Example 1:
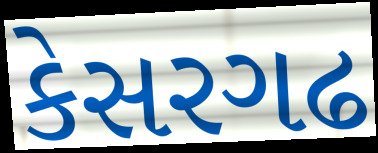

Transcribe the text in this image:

કેસરગઢ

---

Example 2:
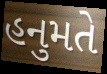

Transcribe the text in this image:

હનુમતે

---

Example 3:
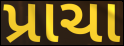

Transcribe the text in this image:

પ્રાચા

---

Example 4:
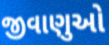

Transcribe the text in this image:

જીવાણુઓ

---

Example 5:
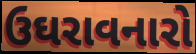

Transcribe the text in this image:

ઉઘરાવનારો